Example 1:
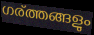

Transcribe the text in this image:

ഗര്ത്തങ്ങളും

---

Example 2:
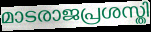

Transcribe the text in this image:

മാടരാജപ്രശസ്തി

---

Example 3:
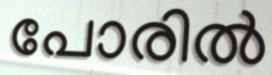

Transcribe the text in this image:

പോരിൽ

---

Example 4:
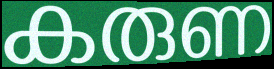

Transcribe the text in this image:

കരുണ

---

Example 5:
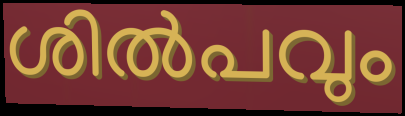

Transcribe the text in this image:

ശിൽപവും